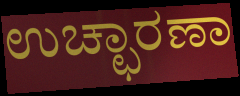
ಉಚ್ಛಾರಣಾ